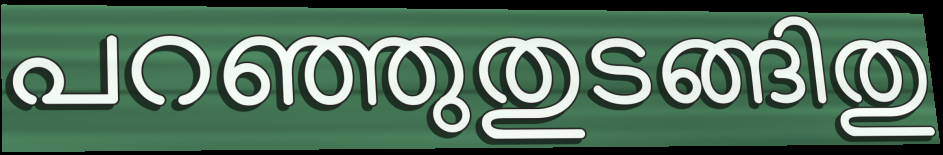
പറഞ്ഞുതുടങ്ങിതു